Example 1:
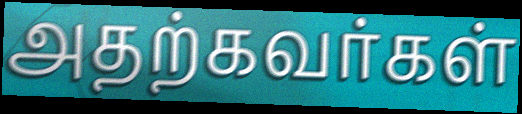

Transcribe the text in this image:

அதற்கவர்கள்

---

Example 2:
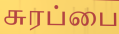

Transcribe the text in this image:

சுரப்பை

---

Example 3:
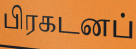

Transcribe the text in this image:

பிரகடனப்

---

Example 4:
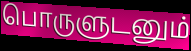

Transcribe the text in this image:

பொருளுடனும்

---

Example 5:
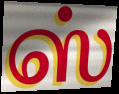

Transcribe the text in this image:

ஸ்